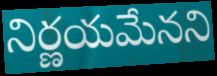
నిర్ణయమేనని